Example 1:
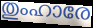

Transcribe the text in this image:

തുംഹാരേ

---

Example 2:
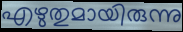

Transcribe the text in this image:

എഴുതുമായിരുന്നു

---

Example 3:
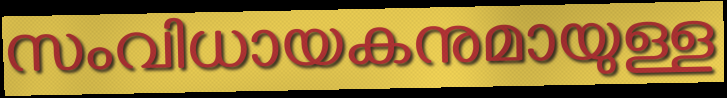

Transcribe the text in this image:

സംവിധായകനുമായുള്ള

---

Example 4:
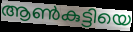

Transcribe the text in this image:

ആൺകുട്ടിയെ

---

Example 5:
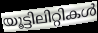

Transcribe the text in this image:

യൂട്ടിലിറ്റികൾ